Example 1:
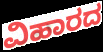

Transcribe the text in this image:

ವಿಹಾರದ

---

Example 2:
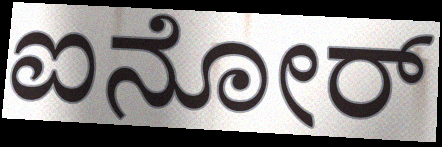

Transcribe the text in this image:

ಐನೋರ್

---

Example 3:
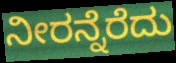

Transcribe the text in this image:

ನೀರನ್ನೆರೆದು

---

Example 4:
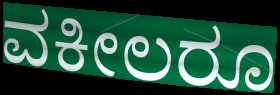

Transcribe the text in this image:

ವಕೀಲರೂ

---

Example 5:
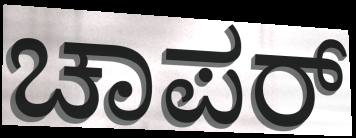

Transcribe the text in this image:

ಚಾಪರ್